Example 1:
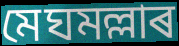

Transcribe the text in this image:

মেঘমল্লাৰ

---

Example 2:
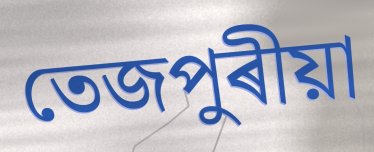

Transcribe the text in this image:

তেজপুৰীয়া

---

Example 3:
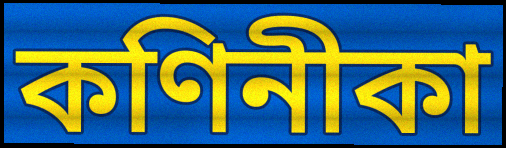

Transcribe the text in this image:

কণিনীকা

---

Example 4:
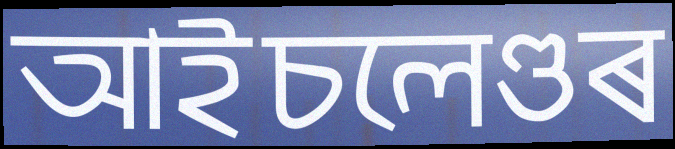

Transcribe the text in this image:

আইচলেণ্ডৰ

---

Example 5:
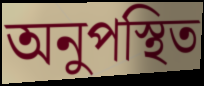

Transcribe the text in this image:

অনুপস্থিত